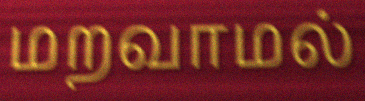
மறவாமல்